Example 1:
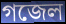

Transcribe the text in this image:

গজেল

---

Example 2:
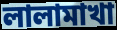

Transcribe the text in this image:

লালামাখা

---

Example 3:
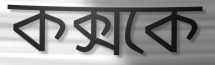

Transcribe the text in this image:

কক্সকে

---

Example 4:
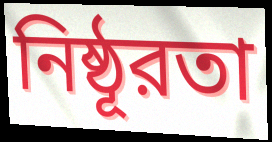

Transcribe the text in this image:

নিষ্ঠূরতা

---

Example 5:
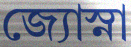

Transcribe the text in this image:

জ্যোস্না